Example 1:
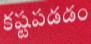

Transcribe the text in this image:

కష్టపడడం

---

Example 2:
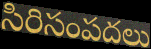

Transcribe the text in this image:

సిరిసంపదలు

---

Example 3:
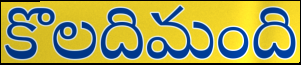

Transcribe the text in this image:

కొలదిమంది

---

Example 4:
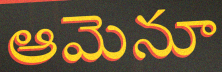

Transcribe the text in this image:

ఆమెనూ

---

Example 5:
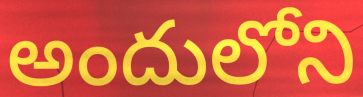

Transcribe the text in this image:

అందులోని